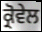
ਕ੍ਰੋਵੇਲ